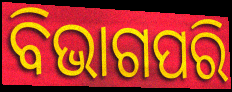
ବିଭାଗପରି